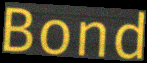
Bond